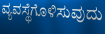
ವ್ಯವಸ್ಥೆಗೊಳಿಸುವುದು